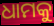
ଧାମକୁ